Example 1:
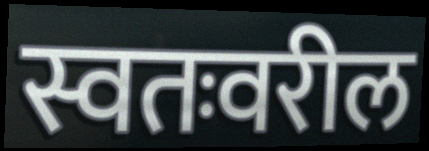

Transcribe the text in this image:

स्वतःवरील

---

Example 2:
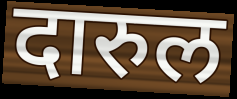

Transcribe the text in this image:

दारुल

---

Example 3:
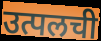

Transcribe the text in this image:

उत्पलची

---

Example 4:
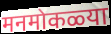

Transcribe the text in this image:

मनमोकळ्या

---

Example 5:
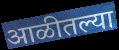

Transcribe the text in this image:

आळीतल्या